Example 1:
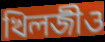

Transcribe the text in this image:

খিলজীও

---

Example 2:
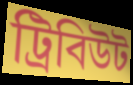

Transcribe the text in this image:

ট্রিবিউট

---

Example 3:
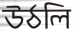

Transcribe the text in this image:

উঠলি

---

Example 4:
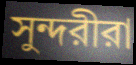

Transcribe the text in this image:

সুন্দরীরা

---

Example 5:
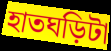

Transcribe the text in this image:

হাতঘড়িটা